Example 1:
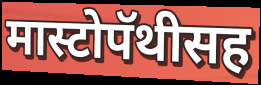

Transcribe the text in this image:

मास्टोपॅथीसह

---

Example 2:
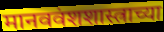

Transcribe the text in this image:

मानववंशशास्त्राच्या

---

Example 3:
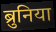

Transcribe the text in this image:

ब्रुनिया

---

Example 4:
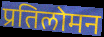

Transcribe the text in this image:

प्रतिलोमन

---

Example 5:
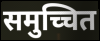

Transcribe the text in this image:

समुच्चित